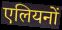
एलियनों